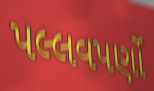
પલ્લવપર્ણો